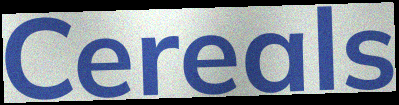
Cereals